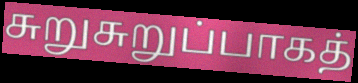
சுறுசுறுப்பாகத்